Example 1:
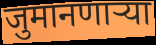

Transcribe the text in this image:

जुमानणार्‍या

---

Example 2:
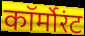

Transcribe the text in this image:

कॉर्मोरंट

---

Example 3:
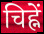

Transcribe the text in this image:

चिह्नें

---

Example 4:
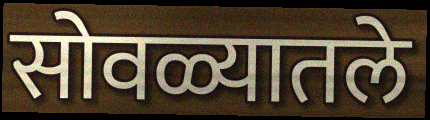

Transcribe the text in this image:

सोवळ्यातले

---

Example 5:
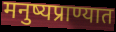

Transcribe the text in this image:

मनुष्यप्राण्यात